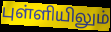
புள்ளியிலும்